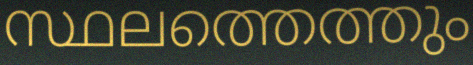
സ്ഥലത്തെത്തും